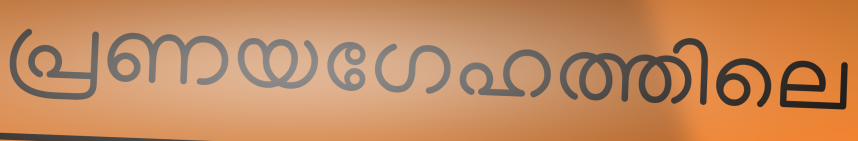
പ്രണയഗേഹത്തിലെ